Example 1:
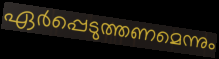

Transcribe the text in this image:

ഏർപ്പെടുത്തണമെന്നും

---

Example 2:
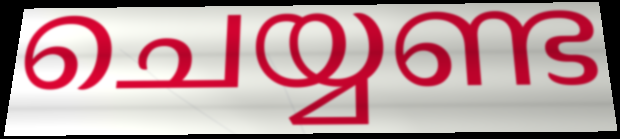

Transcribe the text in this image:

ചെയ്യണ്ട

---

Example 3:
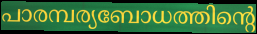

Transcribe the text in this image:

പാരമ്പര്യബോധത്തിന്റെ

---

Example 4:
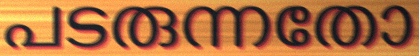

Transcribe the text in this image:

പടരുന്നതോ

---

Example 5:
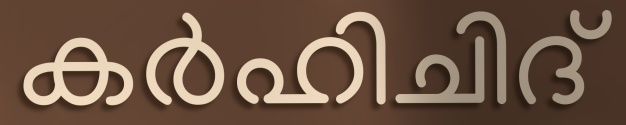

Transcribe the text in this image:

കർഹിചിദ്